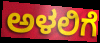
ಅಳಲಿಗೆ